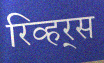
रिव्हर्स